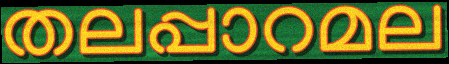
തലപ്പാറമല